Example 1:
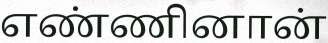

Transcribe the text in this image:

எண்ணினான்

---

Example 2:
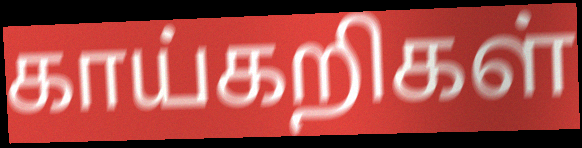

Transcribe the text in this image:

காய்கறிகள்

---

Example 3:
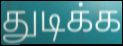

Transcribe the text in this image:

துடிக்க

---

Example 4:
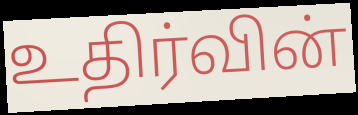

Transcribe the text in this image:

உதிர்வின்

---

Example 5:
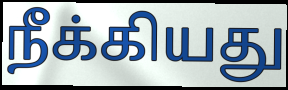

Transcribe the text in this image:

நீக்கியது